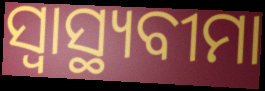
ସ୍ଵାସ୍ଥ୍ୟବୀମା